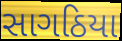
સાગઠિયા